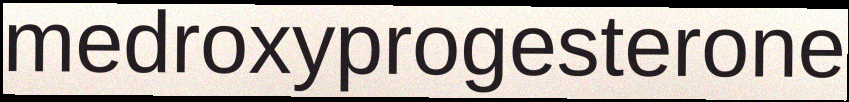
medroxyprogesterone